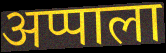
अप्पाला